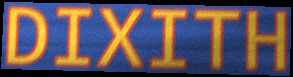
DIXITH